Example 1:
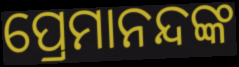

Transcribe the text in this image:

ପ୍ରେମାନନ୍ଦଙ୍କ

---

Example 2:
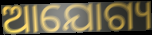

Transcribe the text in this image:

ଆଯୋଗ୍ୟ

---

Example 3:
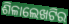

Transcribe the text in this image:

ଶିଳାଲେଖଟିର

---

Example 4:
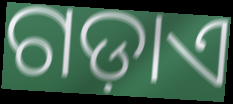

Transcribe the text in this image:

ଗଡ଼ାଏ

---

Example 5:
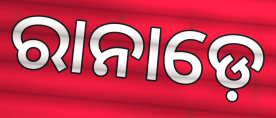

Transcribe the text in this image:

ରାନାଡ଼େ